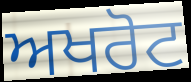
ਅਖਰੋਟ